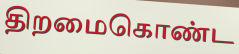
திறமைகொண்ட